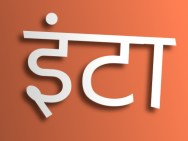
इंटा